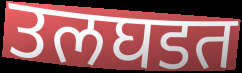
उलघडत